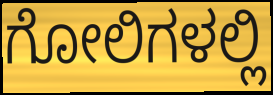
ಗೋಲಿಗಳಲ್ಲಿ